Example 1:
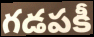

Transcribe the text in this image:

గడపకీ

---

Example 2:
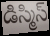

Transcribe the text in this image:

డిస్మిస్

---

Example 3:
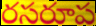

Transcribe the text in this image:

రసరూప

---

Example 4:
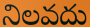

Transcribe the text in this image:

నిలవదు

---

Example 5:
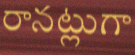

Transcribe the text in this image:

రానట్లుగా